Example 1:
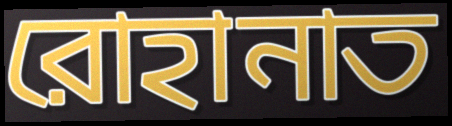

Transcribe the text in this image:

রোহানাত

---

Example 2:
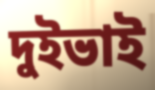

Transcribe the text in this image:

দুইভাই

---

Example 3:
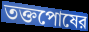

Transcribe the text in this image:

তক্তপোষের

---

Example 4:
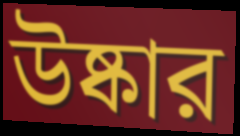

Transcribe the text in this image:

উষ্কার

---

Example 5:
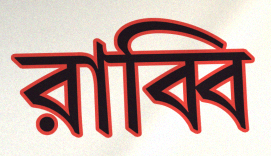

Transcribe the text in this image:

রাব্বি